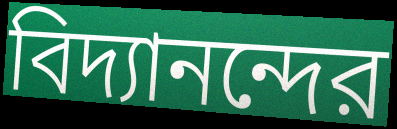
বিদ্যানন্দের